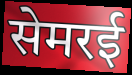
सेमरई